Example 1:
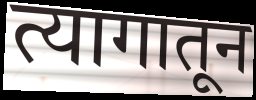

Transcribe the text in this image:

त्यागातून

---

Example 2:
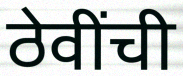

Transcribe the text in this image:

ठेवींची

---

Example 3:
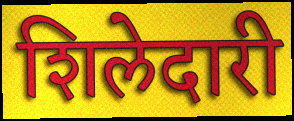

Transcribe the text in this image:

शिलेदारी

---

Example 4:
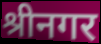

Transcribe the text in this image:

श्रीनगर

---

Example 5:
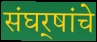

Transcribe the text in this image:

संघर्षांचे